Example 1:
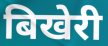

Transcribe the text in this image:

बिखेरी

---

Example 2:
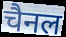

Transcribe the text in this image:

चैनल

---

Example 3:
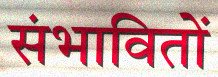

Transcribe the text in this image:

संभावितों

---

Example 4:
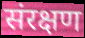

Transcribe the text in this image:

संरक्षण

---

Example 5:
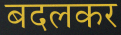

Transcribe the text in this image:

बदलकर